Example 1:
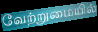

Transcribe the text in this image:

வேற்றுமையில்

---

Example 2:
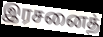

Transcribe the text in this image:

இரசனைத்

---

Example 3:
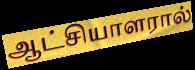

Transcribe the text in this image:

ஆட்சியாளரால்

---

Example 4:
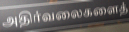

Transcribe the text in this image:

அதிர்வலைகளைத்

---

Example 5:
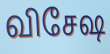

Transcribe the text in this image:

விசேஷ